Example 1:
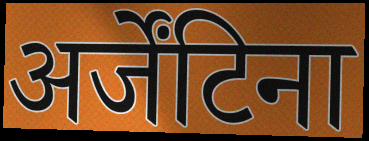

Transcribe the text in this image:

अर्जेंटिना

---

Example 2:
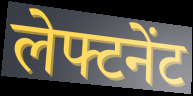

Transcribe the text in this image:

लेफ्टनेंट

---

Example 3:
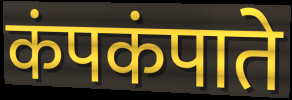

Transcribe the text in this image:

कंपकंपाते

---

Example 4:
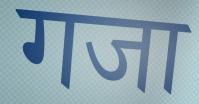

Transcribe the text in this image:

गजा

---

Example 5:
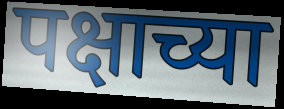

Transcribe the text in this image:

पक्षाच्या